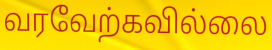
வரவேற்கவில்லை